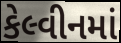
કેલ્વીનમાં